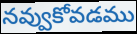
నవ్వుకోవడము